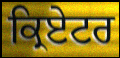
ਕ੍ਰਿਏਟਰ